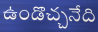
ఉండొచ్చనేది